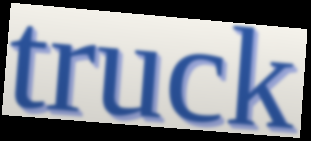
truck